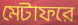
মেটাফরে